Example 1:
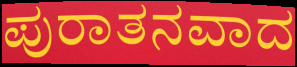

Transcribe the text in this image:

ಪುರಾತನವಾದ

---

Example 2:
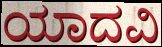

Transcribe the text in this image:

ಯಾದವಿ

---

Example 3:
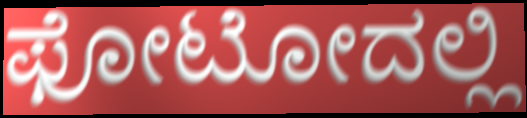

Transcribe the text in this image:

ಫೋಟೋದಲ್ಲಿ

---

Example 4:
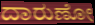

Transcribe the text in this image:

ದಾರುಣೋ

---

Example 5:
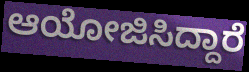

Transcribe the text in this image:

ಆಯೋಜಿಸಿದ್ದಾರೆ